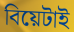
বিয়েটাই